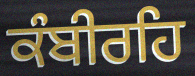
ਕੰਬੀਰਹਿ